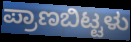
ಪ್ರಾಣಬಿಟ್ಟಳು